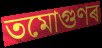
তমোগুণৰ